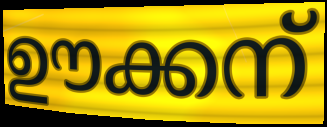
ഊക്കന്